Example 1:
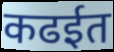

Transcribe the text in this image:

कढईत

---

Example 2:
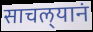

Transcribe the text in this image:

साचल्यानं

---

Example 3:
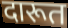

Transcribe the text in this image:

दारूत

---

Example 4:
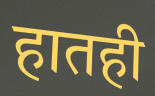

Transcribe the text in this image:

हातही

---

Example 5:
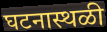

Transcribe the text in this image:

घटनास्थळी